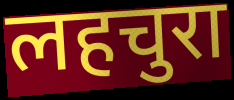
लहचुरा